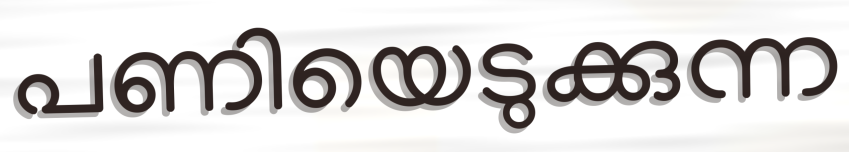
പണിയെടുക്കുന്ന